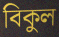
বিকুল